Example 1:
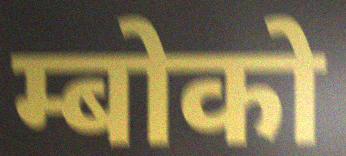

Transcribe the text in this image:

म्बोको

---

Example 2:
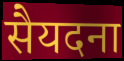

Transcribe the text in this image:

सैयदना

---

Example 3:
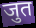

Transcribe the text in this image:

जुत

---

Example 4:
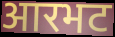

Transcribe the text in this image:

आरभट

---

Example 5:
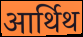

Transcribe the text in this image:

आर्थिथ